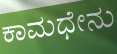
ಕಾಮಧೇನು